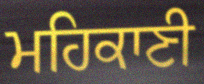
ਮਹਿਕਾਣੀ